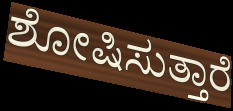
ಶೋಷಿಸುತ್ತಾರೆ